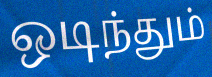
ஒடிந்தும்